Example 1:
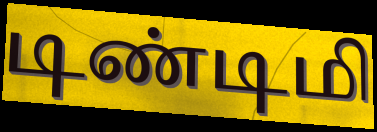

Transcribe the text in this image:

டிண்டிமி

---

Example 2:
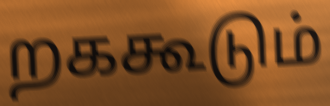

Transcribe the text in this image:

றககூடும்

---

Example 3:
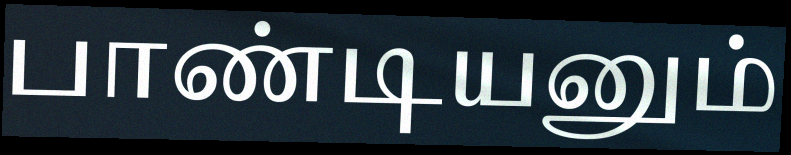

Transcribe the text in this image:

பாண்டியனும்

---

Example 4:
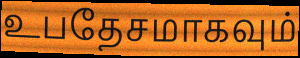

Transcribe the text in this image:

உபதேசமாகவும்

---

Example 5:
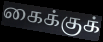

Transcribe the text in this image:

கைக்குக்